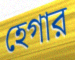
হেগার